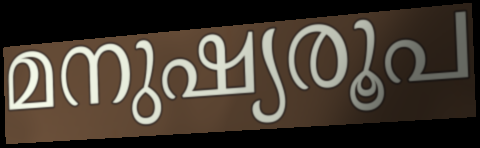
മനുഷ്യരൂപ